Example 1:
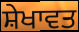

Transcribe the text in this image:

ਸ਼ੇਖਾਵਤ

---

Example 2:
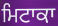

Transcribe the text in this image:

ਮਿਟਾਕਾ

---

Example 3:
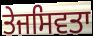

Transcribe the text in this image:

ਤੇਜਸਿਵਤਾ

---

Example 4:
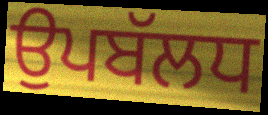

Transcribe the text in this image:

ਉਪਬੱਲਧ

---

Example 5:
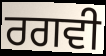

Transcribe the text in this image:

ਰਗਵੀ